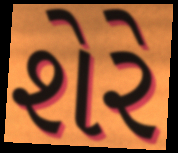
શેરે